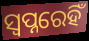
ସ୍ୱପ୍ନରେହିଁ